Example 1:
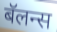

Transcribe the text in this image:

बॅलन्स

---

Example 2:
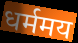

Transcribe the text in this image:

धर्ममय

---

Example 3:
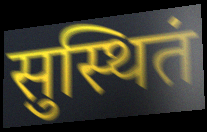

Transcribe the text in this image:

सुस्थितं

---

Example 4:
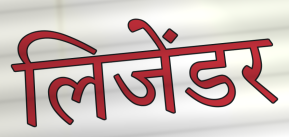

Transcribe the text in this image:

लिजेंडर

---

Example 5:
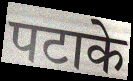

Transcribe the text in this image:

पटाके